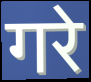
गरे